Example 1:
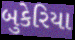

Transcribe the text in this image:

બુકેરિયા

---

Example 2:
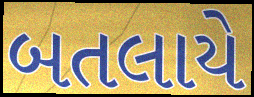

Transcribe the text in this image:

બતલાયે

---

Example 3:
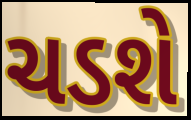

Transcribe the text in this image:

ચડશે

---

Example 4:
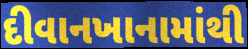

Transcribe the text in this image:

દીવાનખાનામાંથી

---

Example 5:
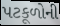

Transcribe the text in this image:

પટકૂળોની